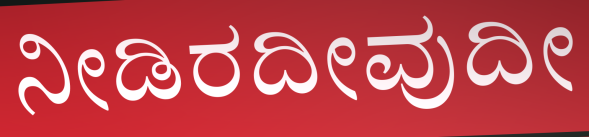
ನೀಡಿರದೀವುದೀ